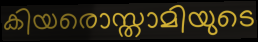
കിയരൊസ്താമിയുടെ